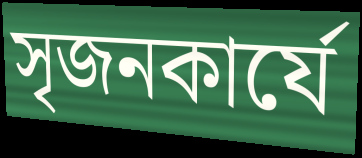
সৃজনকার্যে